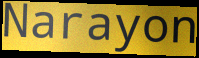
Narayon